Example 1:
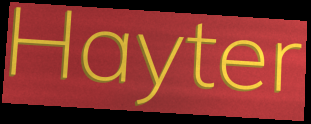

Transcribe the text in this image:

Hayter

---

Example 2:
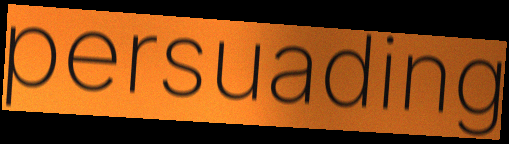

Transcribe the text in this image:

persuading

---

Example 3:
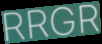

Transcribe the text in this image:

RRGR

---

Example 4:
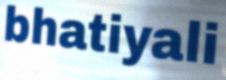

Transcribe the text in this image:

bhatiyali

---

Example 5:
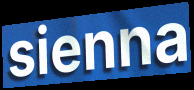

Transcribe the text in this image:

sienna